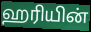
ஹரியின்